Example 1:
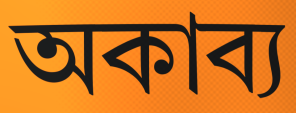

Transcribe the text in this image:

অকাব্য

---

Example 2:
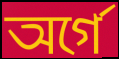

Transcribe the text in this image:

অর্গে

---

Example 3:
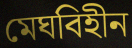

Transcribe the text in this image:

মেঘবিহীন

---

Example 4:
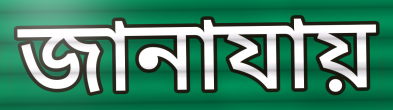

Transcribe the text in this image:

জানাযায়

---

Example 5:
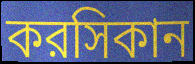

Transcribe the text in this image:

করসিকান